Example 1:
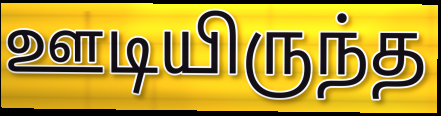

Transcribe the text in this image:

ஊடியிருந்த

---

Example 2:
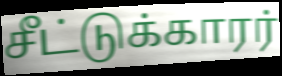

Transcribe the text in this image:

சீட்டுக்காரர்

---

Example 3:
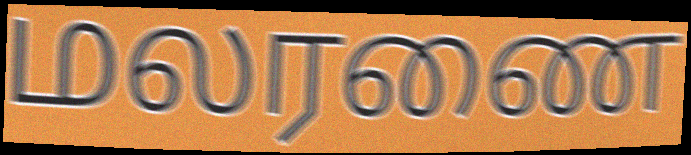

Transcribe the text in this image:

மலரணை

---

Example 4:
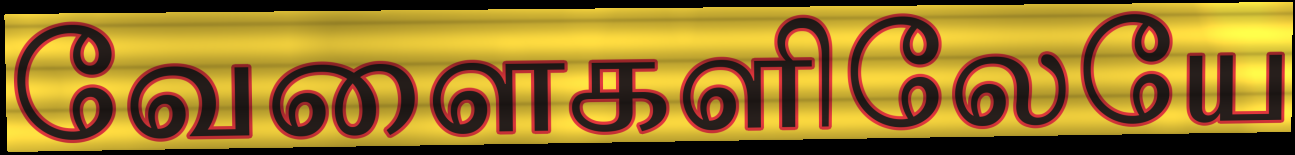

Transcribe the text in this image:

வேளைகளிலேயே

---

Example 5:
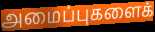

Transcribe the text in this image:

அமைப்புகளைக்